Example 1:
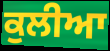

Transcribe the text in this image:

ਕੁਲੀਆ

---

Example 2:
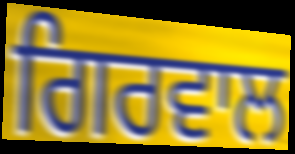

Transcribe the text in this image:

ਗਿਰਵਾਲ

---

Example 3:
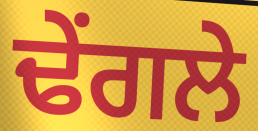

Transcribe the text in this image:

ਢੇਂਗਲੇ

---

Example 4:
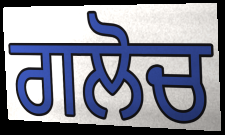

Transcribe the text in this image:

ਗਲੋਚ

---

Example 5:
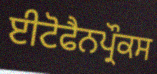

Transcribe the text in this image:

ਈਟੋਫੈਨਪ੍ਰੌਕਸ